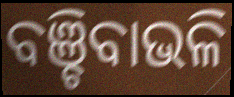
ବଞ୍ଚିବାଭଳି